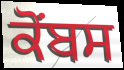
ਕੋਂਬਸ